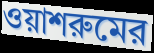
ওয়াশরুমের